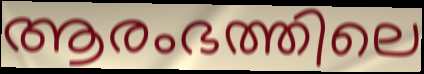
ആരംഭത്തിലെ